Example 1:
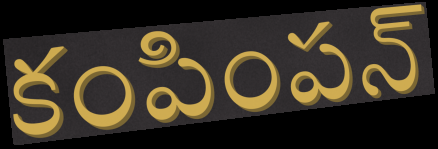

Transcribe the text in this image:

కంపింపన్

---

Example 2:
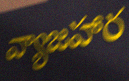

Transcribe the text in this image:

వ్యాజహార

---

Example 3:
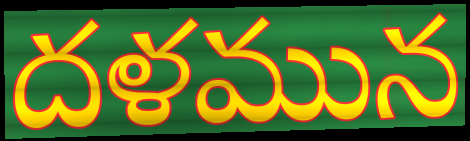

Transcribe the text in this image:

దళమున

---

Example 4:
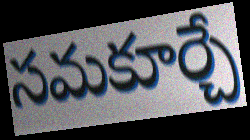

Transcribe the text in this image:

సమకూర్చే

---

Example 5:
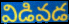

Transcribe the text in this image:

విడివడ